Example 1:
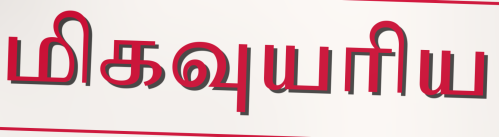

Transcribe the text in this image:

மிகவுயரிய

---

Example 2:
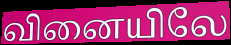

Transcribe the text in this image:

வினையிலே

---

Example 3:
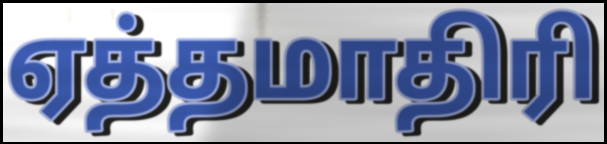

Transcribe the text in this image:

ஏத்தமாதிரி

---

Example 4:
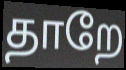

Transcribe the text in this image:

தாறே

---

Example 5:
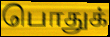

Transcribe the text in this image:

பொதுக்